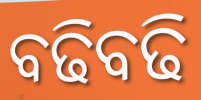
ବଢିବଢି